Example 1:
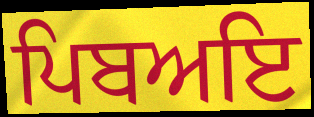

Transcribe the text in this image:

ਪਿਬਅਇ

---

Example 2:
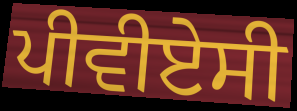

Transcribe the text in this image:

ਪੀਵੀਏਸੀ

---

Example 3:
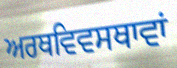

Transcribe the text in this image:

ਅਰਥਵਿਵਸਥਾਵਾਂ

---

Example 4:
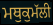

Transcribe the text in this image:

ਮਥੁਕੁਮੱਲੀ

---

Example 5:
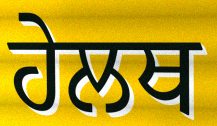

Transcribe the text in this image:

ਹੇਲਥ